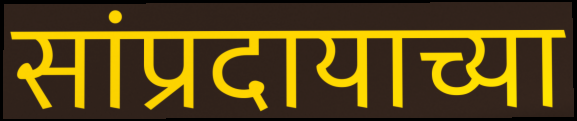
सांप्रदायाच्या